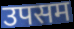
उपसम